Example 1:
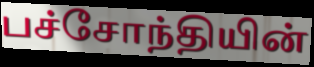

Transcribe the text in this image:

பச்சோந்தியின்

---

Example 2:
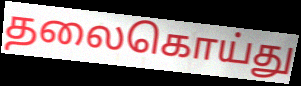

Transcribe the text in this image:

தலைகொய்து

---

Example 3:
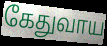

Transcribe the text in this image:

கேதுவாய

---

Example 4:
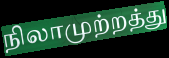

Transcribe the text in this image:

நிலாமுற்றத்து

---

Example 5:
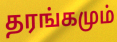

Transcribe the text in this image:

தரங்கமும்